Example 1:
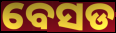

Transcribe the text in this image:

ବେସଡ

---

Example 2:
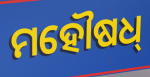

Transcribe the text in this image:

ମହୌଷଧ୍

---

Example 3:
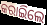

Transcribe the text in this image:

କରାଇିଲେ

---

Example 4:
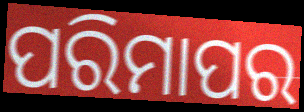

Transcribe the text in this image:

ପରିମାପର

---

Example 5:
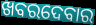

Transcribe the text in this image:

ଖବରଦେବାର